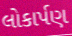
લોકાર્પણ